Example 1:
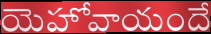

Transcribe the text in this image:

యెహోవాయందే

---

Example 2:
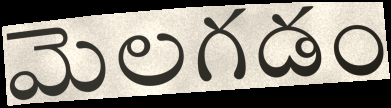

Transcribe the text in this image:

మెలగడం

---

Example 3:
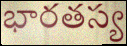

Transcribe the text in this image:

భారతస్య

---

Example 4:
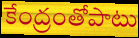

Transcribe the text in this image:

కేంద్రంతోపాటు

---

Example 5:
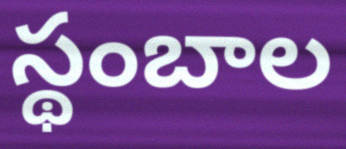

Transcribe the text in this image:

స్థంబాల